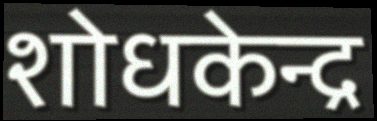
शोधकेन्द्र